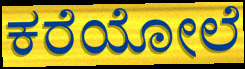
ಕರೆಯೋಲೆ